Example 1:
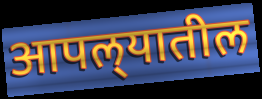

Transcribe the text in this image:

आपल्यातील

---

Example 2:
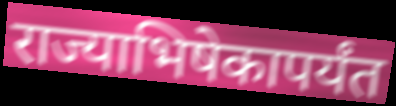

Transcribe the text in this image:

राज्याभिषेकापर्यंत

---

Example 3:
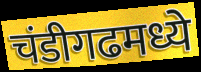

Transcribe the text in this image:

चंडीगढमध्ये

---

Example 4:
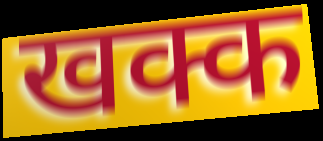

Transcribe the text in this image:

खक्क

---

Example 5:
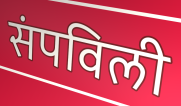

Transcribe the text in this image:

संपविली